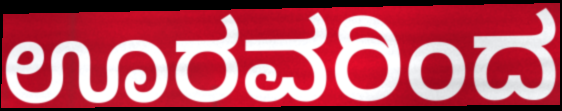
ಊರವರಿಂದ